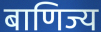
बाणिज्य